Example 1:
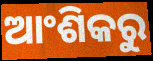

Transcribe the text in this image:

ଆଂଶିକରୁ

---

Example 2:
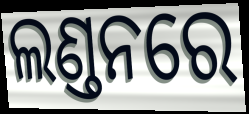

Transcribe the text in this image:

ଲଣ୍ଡନରେ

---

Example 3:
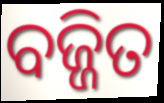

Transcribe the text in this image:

ବଜ୍ଜିତ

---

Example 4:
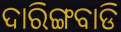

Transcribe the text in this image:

ଦାରିଙ୍ଗବାଡି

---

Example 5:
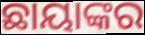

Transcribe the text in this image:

ଛାୟାଙ୍କର